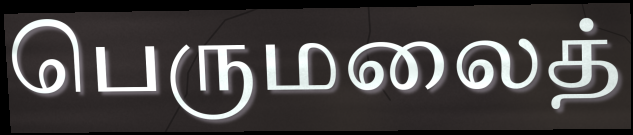
பெருமலைத்